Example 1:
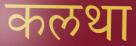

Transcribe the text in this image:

कलथा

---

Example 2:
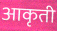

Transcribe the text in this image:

आकृती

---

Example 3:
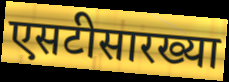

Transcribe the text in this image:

एसटीसारख्या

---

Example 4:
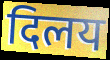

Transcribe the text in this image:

दिलय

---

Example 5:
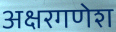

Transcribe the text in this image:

अक्षरगणेश